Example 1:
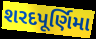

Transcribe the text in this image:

શરદપૂર્ણિમા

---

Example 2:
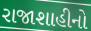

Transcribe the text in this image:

રાજાશાહીનો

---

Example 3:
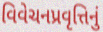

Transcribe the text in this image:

વિવેચનપ્રવૃત્તિનું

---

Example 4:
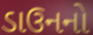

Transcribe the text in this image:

ડાઉનનો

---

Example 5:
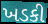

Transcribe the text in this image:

ખડકી